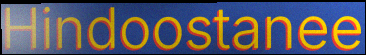
Hindoostanee